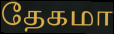
தேகமா